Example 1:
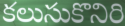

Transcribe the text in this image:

కలుసుకొనిరి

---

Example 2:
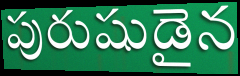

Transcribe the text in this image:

పురుషుడైన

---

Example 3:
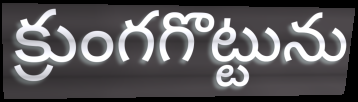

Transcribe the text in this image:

క్రుంగగొట్టును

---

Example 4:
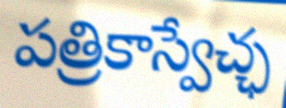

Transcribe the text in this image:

పత్రికాస్వేచ్ఛ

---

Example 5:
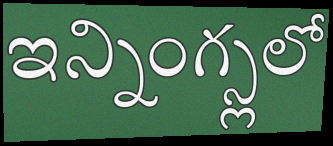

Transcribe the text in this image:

ఇన్నింగ్స్లలో